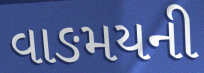
વાઙમયની